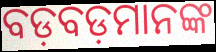
ବଡ଼ବଡ଼ମାନଙ୍କ